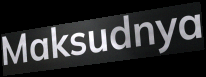
Maksudnya